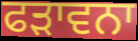
ਫੜਾਵਨਾ